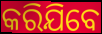
କରିଯିବେ